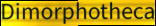
Dimorphotheca